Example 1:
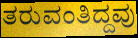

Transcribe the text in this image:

ತರುವಂತಿದ್ದವು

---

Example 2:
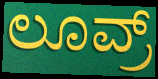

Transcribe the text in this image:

ಲೂವ್ರ್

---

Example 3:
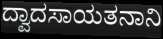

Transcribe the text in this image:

ದ್ವಾದಸಾಯತನಾನಿ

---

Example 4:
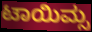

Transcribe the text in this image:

ಟಾಯಿಮ್ಸ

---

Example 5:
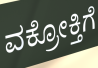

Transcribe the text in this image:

ವಕ್ರೋಕ್ತಿಗೆ